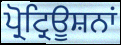
ਪ੍ਰੋਟ੍ਰਿਊਸ਼ਨਾਂ